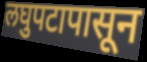
लघुपटापासून